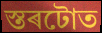
স্তৰটোত